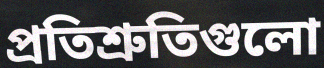
প্রতিশ্রুতিগুলো